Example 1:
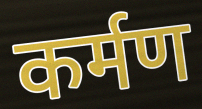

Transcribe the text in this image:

कर्मण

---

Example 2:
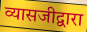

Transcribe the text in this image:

व्यासजीद्वारा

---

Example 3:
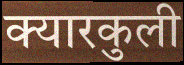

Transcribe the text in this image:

क्यारकुली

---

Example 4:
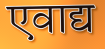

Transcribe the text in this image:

एवाद्य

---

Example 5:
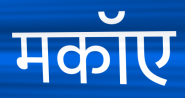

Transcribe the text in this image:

मकॉए